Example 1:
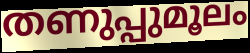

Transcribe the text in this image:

തണുപ്പുമൂലം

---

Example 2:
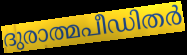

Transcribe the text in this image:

ദുരാത്മപീഡിതർ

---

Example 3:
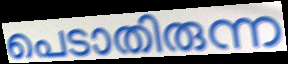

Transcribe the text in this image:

പെടാതിരുന്ന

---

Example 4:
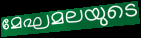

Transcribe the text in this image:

മേഘമലയുടെ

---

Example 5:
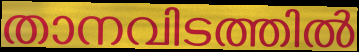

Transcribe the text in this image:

താനവിടത്തിൽ